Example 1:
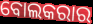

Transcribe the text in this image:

ବୋଲକରାର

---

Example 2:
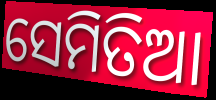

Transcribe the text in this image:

ସେମିତିଆ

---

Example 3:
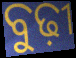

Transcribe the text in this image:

ବୁଢ଼ୀ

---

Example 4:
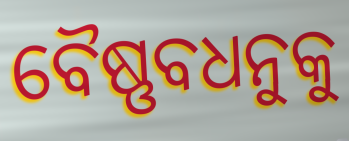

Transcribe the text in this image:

ବୈଷ୍ଣବଧନୁକୁ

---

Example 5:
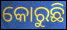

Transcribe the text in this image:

କୋରୁଛି